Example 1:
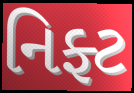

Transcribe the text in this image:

નિફ્ટ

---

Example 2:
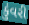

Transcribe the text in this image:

કુંવરી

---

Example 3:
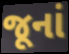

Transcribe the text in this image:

જૂનાં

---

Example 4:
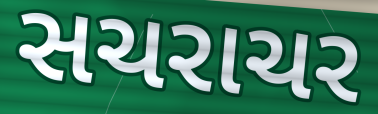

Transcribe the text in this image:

સચરાચર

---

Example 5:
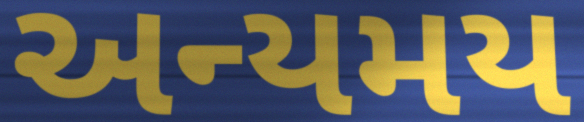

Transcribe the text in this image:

અન્યમય